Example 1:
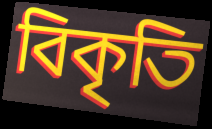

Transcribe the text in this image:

বিকৃতি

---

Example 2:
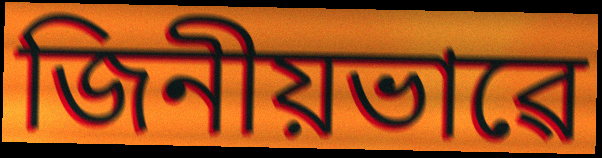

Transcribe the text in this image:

জিনীয়ভাৱে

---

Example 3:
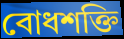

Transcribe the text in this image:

বোধশক্তি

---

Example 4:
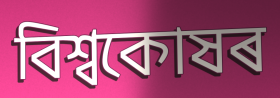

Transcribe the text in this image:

বিশ্বকোষৰ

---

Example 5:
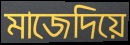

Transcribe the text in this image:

মাজেদিয়ে